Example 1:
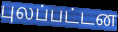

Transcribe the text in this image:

புலப்பட்டன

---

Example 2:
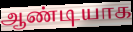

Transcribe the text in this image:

ஆண்டியாக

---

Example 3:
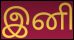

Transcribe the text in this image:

இனி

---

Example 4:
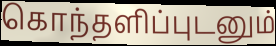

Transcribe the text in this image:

கொந்தளிப்புடனும்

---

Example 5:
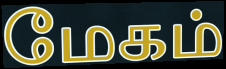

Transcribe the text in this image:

மேகம்